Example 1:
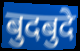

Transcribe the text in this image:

बुदबुदे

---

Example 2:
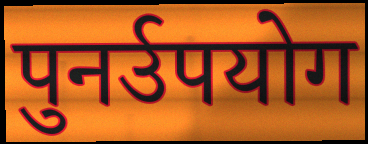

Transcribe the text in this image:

पुनर्उपयोग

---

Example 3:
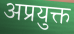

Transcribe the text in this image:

अप्रयुक्त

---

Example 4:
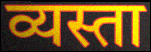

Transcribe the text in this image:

व्यस्ता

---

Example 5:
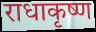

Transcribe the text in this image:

राधाकृष्ण